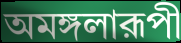
অমঙ্গলারূপী